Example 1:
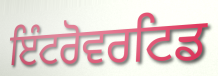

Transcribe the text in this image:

ਇੰਟਰੋਵਰਟਿਡ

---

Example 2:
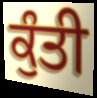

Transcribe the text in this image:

ਕੁੰਤੀ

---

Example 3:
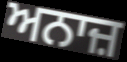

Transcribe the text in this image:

ਅਨਾਜ਼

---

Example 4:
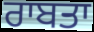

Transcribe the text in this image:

ਰਾਬਤਾ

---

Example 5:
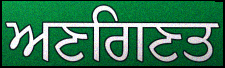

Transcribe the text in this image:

ਅਣਗਿਣਤ